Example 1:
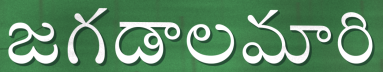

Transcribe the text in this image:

జగడాలమారి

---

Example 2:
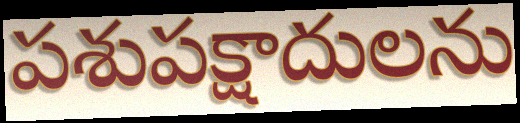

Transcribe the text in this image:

పశుపక్షాదులను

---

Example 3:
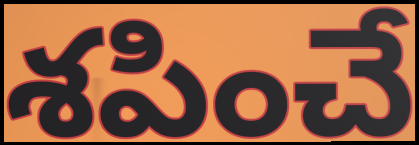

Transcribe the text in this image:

శపించే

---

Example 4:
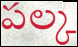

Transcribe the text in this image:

పల్క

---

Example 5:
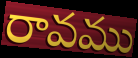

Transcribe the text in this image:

రావము